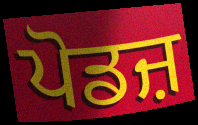
ਪੋਡਜ਼